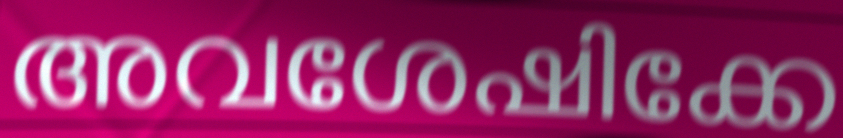
അവശേഷിക്കേ